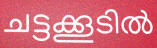
ചട്ടക്കൂടിൽ